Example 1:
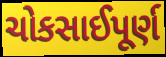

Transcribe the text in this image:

ચોકસાઈપૂર્ણ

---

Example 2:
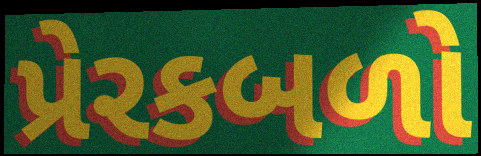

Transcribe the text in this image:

પ્રેરકબળો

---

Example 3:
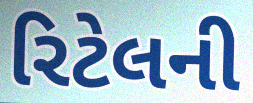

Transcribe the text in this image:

રિટેલની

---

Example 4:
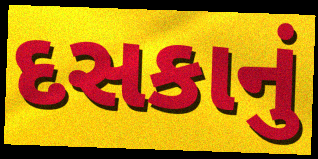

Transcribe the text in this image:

દસકાનું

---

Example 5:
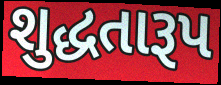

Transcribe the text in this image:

શુદ્ધતારૂપ